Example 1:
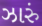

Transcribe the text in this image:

ઝારું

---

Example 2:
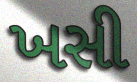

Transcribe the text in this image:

ખસી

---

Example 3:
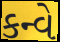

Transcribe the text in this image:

કન્વે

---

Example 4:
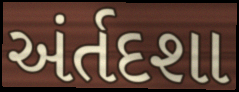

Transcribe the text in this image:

અંર્તદશા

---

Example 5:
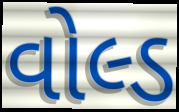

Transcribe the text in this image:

વોલ્ડ